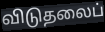
விடுதலைப்